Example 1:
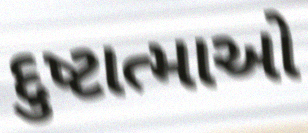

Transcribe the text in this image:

દુષ્ટાત્માઓ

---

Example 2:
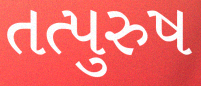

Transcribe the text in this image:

તત્પુરુષ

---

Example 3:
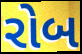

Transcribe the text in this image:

રોબ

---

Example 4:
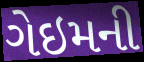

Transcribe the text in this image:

ગેઇમની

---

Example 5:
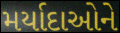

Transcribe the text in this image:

મર્યાદાઓને